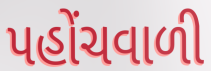
પહોંચવાળી